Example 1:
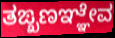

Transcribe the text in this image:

ತಙ್ಖಣಞ್ಞೇವ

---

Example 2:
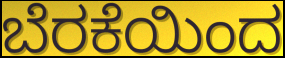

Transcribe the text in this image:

ಬೆರಕೆಯಿಂದ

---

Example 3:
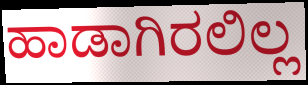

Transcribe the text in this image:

ಹಾಡಾಗಿರಲಿಲ್ಲ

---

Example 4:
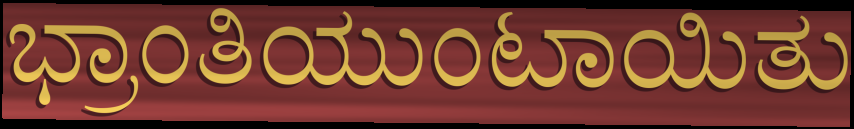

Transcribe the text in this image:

ಭ್ರಾಂತಿಯುಂಟಾಯಿತು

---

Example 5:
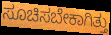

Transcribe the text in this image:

ಸೂಚಿಸಬೇಕಾಗಿತ್ತು